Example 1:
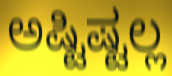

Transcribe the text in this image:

ಅಷ್ಟಿಷ್ಟಲ್ಲ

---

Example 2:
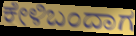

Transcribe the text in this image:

ಕೇಳಿಬಂದಾಗ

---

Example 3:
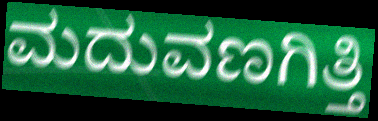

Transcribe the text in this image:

ಮದುವಣಗಿತ್ತಿ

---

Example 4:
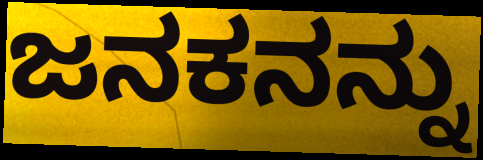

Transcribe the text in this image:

ಜನಕನನ್ನು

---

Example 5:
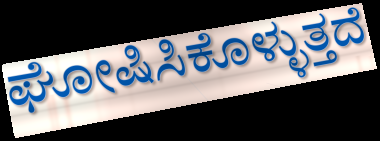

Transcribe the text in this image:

ಘೋಷಿಸಿಕೊಳ್ಳುತ್ತದೆ